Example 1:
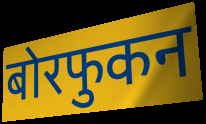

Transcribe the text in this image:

बोरफुकन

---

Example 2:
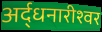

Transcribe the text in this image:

अर्द्धनारीश्वर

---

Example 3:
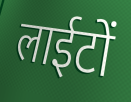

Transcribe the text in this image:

लाईटों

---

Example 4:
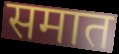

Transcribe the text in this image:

समात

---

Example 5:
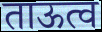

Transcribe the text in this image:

ताऊत्व